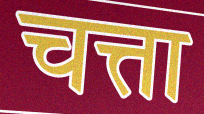
चत्ता